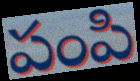
పంపి